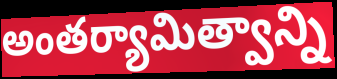
అంతర్యామిత్వాన్ని